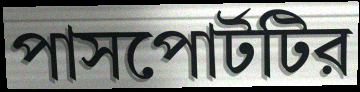
পাসপোর্টটির